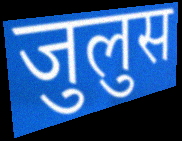
जुलुस